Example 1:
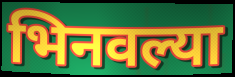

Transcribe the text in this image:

भिनवल्या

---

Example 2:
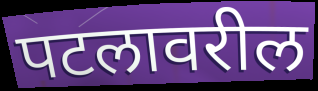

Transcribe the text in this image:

पटलावरील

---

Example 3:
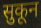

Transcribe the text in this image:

सुकून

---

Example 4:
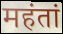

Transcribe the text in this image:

महंतां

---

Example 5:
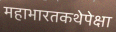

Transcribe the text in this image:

महाभारतकथेपेक्षा